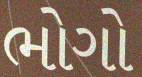
ભોગો